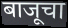
बाजूचा